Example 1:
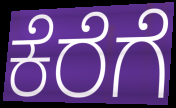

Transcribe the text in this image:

ಕೆರೆಗೆ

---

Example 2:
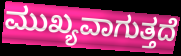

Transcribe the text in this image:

ಮುಖ್ಯವಾಗುತ್ತದೆ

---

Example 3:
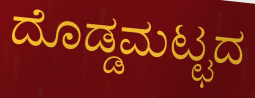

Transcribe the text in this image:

ದೊಡ್ಡಮಟ್ಟದ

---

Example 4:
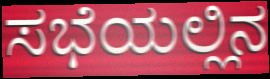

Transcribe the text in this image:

ಸಭೆಯಲ್ಲಿನ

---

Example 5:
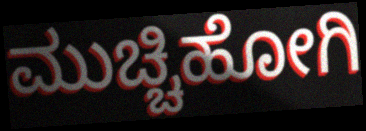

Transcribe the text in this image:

ಮುಚ್ಚಿಹೋಗಿ